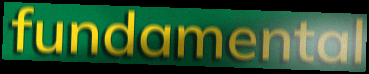
fundamental